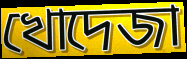
খোদেজা